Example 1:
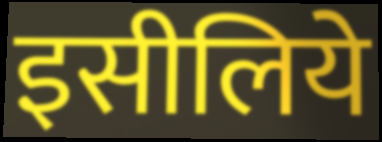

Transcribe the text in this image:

इसीलिये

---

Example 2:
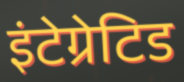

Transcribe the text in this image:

इंटेग्रेटिड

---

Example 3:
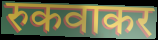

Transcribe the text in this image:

रुकवाकर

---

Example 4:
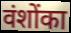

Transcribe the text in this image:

वंशोंका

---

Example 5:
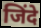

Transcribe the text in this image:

जिंदे